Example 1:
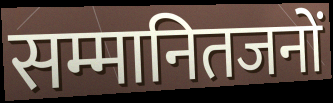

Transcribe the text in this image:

सम्मानितजनों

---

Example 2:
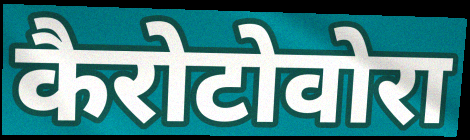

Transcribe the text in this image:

कैरोटोवोरा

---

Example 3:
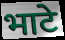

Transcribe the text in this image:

भाटे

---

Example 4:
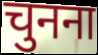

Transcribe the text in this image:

चुनना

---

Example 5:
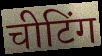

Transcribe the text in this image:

चीटिंग